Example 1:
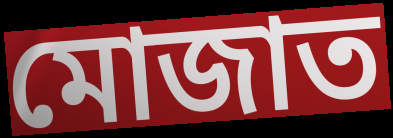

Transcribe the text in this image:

মোজাত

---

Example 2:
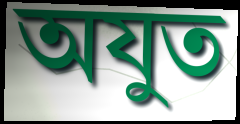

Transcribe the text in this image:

অযুত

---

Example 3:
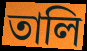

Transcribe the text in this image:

তালি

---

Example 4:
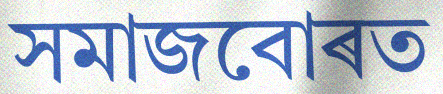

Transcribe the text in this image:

সমাজবোৰত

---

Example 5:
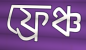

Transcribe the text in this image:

ফ্ৰেঞ্চ